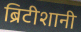
ब्रिटीशानी